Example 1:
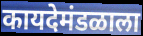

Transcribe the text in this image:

कायदेमंडळाला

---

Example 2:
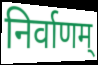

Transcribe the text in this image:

निर्वाणम्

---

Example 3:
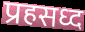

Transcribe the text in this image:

प्रहसध्द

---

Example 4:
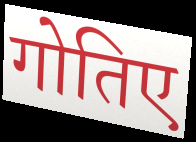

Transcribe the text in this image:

गोतिए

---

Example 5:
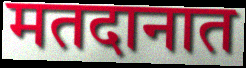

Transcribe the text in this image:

मतदानात